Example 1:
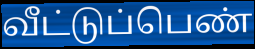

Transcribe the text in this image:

வீட்டுப்பெண்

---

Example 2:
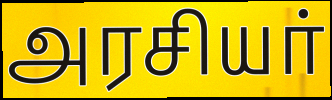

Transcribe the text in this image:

அரசியர்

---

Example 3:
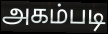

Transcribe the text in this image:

அகம்படி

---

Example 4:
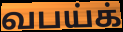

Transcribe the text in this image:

வபய்க்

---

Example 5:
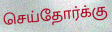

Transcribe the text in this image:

செய்தோர்க்கு